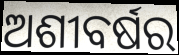
ଅଶୀବର୍ଷର